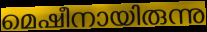
മെഷീനായിരുന്നു